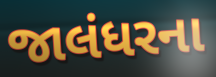
જાલંધરના